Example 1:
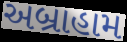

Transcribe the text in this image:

અબ્રાહામ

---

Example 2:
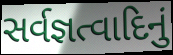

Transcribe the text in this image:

સર્વજ્ઞત્વાદિનું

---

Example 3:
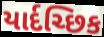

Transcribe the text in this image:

યાર્દચ્છિક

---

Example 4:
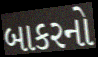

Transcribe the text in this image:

બાકરનો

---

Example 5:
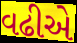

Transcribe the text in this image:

વઢીએ